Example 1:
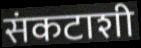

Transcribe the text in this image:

संकटाशी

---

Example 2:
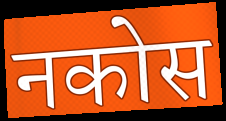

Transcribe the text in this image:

नकोस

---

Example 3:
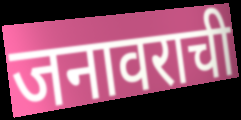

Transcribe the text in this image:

जनावराची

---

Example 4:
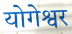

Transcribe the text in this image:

योगेश्वर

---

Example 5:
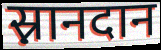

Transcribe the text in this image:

स्नानदान